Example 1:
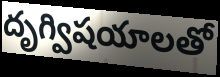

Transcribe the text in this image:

దృగ్విషయాలతో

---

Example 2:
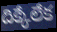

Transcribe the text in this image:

దిక్కేలేక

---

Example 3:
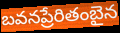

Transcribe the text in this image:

బవనప్రేరితంబైన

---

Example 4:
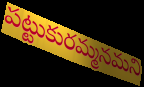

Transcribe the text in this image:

పట్టుకురమ్మనమని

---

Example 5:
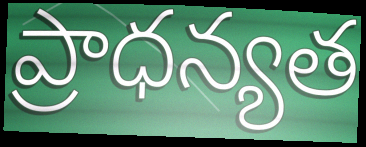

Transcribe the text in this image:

ప్రాధన్యత